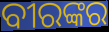
ବୀରଙ୍କର